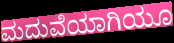
ಮದುವೆಯಾಗಿಯೂ